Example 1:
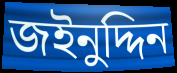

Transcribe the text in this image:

জইনুদ্দিন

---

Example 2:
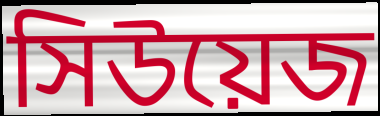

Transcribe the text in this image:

সিউয়েজ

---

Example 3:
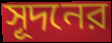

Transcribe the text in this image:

সূদনের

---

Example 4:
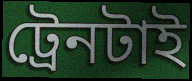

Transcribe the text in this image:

ট্রেনটাই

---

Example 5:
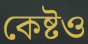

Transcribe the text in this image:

কেষ্টও